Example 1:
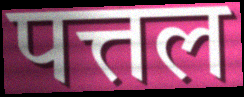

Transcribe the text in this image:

पत्तल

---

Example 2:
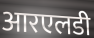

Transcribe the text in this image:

आरएलडी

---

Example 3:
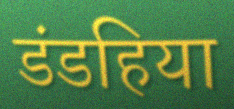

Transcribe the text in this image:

डंडहिया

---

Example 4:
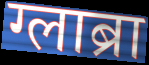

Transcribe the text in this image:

ग्लाब्रा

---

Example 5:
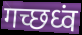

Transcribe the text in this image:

गच्छध्वं